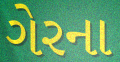
ગેરના